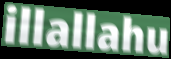
illallahu